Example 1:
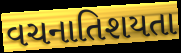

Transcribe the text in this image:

વચનાતિશયતા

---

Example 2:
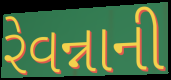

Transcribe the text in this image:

રેવન્નાની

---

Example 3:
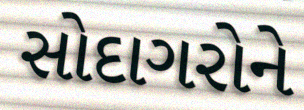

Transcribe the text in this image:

સોદાગરોને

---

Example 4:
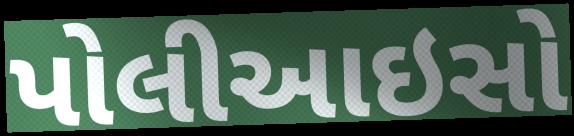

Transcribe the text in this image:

પોલીઆઇસો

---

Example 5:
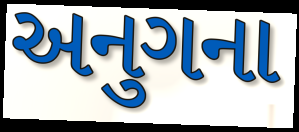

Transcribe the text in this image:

અનુગના